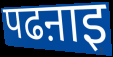
पढऩाइ